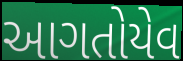
આગતોયેવ